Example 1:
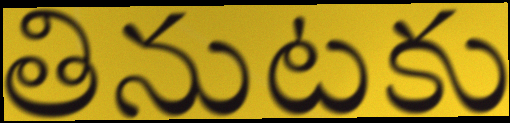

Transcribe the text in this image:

తినుటకు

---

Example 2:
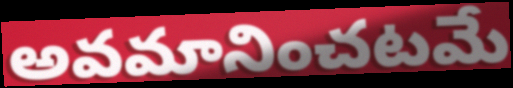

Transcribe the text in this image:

అవమానించటమే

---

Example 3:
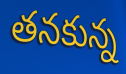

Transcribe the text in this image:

తనకున్న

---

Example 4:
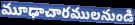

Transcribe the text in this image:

మూఢాచారములనుండి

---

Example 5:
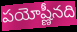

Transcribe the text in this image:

పయోష్ణీనది